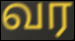
வர